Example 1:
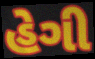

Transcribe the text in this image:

હેગી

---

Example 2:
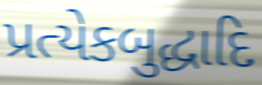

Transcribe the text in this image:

પ્રત્યેકબુદ્ધાદિ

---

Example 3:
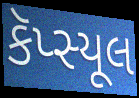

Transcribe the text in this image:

કૅપ્સ્યૂલ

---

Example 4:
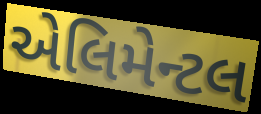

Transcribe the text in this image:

એલિમેન્ટલ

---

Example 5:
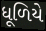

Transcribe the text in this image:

ધૂળિયે